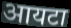
आयटा